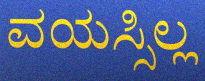
ವಯಸ್ಸಿಲ್ಲ